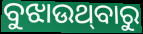
ବୁଝାଉଥ୍‌ବାରୁ